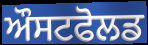
ਔਸਟਫੋਲਡ